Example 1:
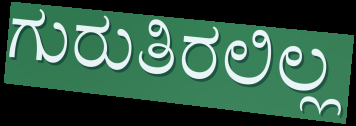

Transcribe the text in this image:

ಗುರುತಿರಲಿಲ್ಲ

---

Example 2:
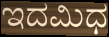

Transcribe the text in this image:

ಇದಮಿಧ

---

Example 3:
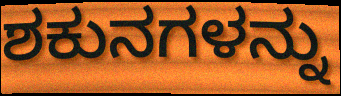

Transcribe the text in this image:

ಶಕುನಗಳನ್ನು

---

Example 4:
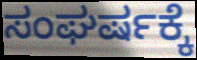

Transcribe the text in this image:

ಸಂಘರ್ಷಕ್ಕೆ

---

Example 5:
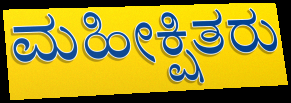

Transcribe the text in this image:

ಮಹೀಕ್ಷಿತರು